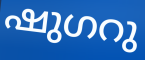
ഷുഗറു